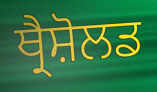
ਥ੍ਰੈਸ਼ੋਲਡ